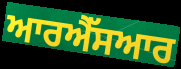
ਆਰਐੱਸਆਰ